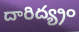
దారిద్య్రం